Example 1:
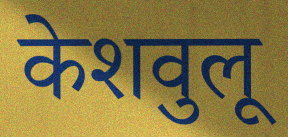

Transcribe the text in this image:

केशवुलू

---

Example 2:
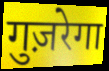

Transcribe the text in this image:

गुज़रेगा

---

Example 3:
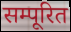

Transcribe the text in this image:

सम्पूरित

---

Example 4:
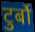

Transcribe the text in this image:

टुर्बो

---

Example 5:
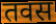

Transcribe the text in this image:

तवस